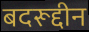
बदरूद्दीन